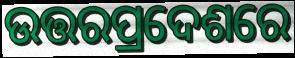
ଉତ୍ତରପ୍ରଦେଶରେ